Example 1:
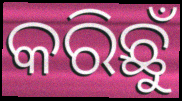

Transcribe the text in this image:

କରିଛୁଁ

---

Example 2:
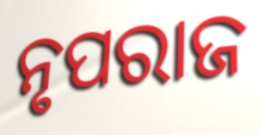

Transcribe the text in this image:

ନୃପରାଜ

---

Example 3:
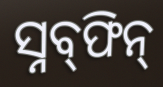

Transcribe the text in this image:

ସ୍ନବ୍‍ଫିନ୍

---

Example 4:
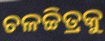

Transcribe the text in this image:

ଚଳଚ୍ଚିତ୍ରକୁ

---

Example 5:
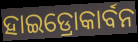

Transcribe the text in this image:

ହାଇଡ୍ରୋକାର୍ବନ